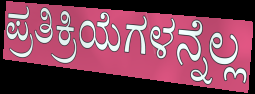
ಪ್ರತಿಕ್ರಿಯೆಗಳನ್ನೆಲ್ಲ